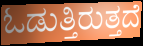
ಓಡುತ್ತಿರುತ್ತದೆ